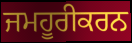
ਜਮਹੂਰੀਕਰਨ